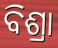
ବିଶ୍ରା